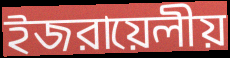
ইজরায়েলীয়